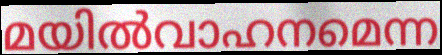
മയിൽവാഹനമെന്ന